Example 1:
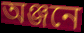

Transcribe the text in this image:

অঞ্জনে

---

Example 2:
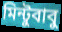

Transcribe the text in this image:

মিন্টুবাবু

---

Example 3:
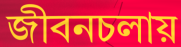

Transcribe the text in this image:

জীবনচলায়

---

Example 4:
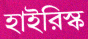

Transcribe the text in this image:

হাইরিস্ক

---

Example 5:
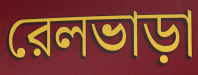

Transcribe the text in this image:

রেলভাড়া